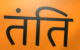
तंति